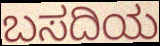
ಬಸದಿಯ